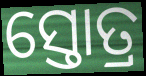
ସ୍ତୋତ୍ର